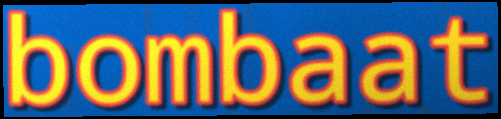
bombaat